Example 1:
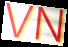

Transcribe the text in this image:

VN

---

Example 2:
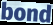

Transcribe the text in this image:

bond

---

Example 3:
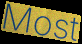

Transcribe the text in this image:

Most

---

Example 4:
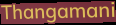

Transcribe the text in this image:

Thangamani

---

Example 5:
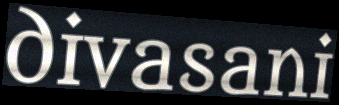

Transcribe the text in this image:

divasani